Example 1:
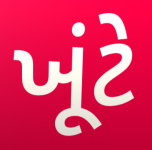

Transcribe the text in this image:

ખૂંટે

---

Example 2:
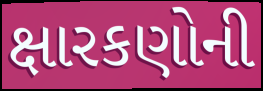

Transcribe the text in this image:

ક્ષારકણોની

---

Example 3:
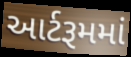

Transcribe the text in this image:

આર્ટરૂમમાં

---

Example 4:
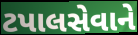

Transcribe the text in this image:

ટપાલસેવાને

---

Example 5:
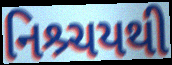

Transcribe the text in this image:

નિશ્ર્ચયથી